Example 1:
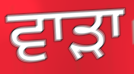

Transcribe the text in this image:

ਵਾੜਾ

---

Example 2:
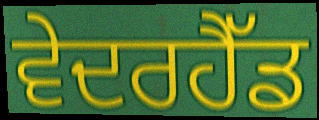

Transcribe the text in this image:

ਵੇਦਰਹੈੱਡ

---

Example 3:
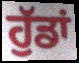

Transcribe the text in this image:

ਹੁੱਡਾਂ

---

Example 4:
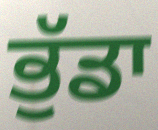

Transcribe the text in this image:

ਭੁੱਡਾ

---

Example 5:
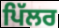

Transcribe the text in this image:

ਪਿੱਲਰ